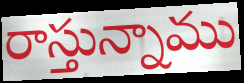
రాస్తున్నాము